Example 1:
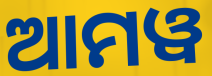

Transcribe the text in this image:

ଆମୱ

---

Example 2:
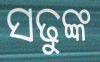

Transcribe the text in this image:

ସଢୁଙ୍କ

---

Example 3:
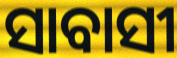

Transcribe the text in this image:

ସାବାସୀ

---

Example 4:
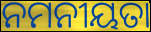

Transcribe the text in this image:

ନମନୀୟତା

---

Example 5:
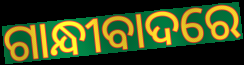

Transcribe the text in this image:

ଗାନ୍ଧୀବାଦରେ